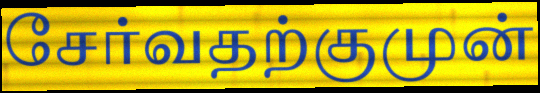
சேர்வதற்குமுன்